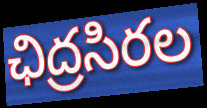
ఛిద్రసిరల